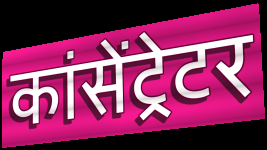
कांसेंट्रेटर